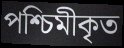
পশ্চিমীকৃত